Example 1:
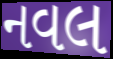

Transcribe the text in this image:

નવલ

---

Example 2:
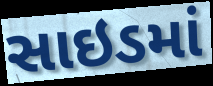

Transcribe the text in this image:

સાઇડમાં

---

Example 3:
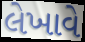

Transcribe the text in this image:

લેખાવે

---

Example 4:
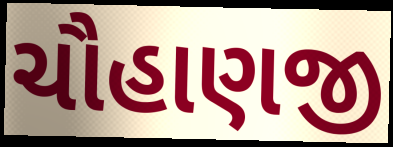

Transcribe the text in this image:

ચૌહાણજી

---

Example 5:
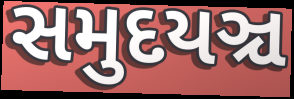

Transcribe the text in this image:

સમુદયઞ્ચ